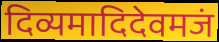
दिव्यमादिदेवमजं